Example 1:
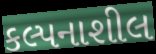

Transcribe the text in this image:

કલ્પનાશીલ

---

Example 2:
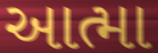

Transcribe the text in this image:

આત્મા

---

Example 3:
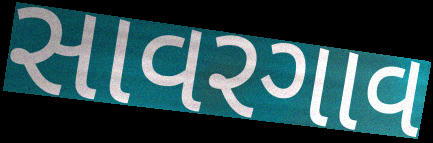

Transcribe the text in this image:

સાવરગાવ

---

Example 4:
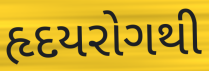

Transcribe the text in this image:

હૃદયરોગથી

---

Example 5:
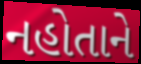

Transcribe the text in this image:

નહોતાને